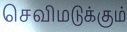
செவிமடுக்கும்